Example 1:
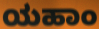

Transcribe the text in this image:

ಯಹಾಂ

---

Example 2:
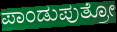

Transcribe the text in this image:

ಪಾಂಡುಪುತ್ರೋ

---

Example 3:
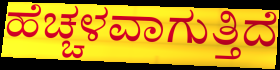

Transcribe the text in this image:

ಹೆಚ್ಚಳವಾಗುತ್ತಿದೆ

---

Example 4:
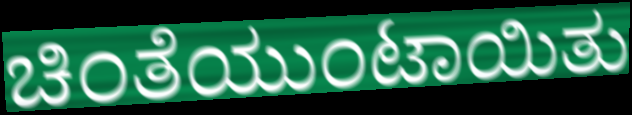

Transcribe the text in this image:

ಚಿಂತೆಯುಂಟಾಯಿತು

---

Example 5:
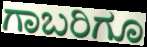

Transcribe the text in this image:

ಗಾಬರಿಗೂ